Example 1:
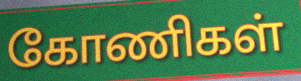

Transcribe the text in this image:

கோணிகள்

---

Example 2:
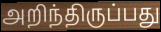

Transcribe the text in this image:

அறிந்திருப்பது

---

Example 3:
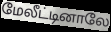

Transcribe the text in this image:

மேலீட்டினாலே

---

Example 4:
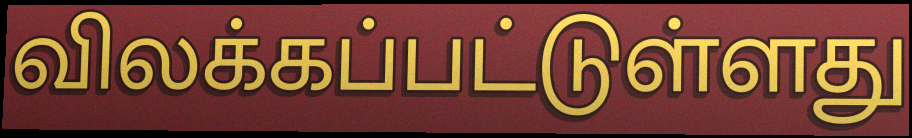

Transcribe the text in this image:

விலக்கப்பட்டுள்ளது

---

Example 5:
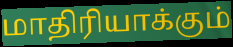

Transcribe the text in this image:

மாதிரியாக்கும்